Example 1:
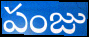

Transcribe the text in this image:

పంజు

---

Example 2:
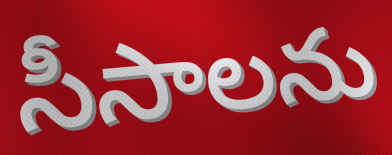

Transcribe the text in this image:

సీసాలను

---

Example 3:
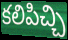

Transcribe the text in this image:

కలిపిచ్చి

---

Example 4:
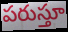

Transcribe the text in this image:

పరుస్తూ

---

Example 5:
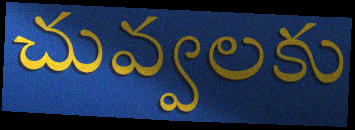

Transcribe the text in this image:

చువ్వలకు